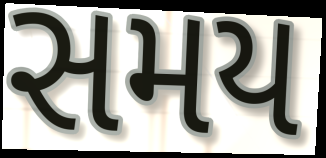
સમય